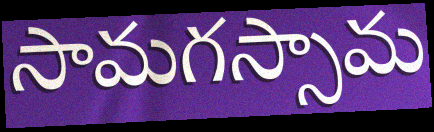
సామగస్సామ